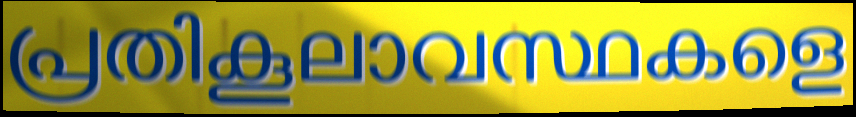
പ്രതികൂലാവസ്ഥകളെ